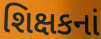
શિક્ષકનાં